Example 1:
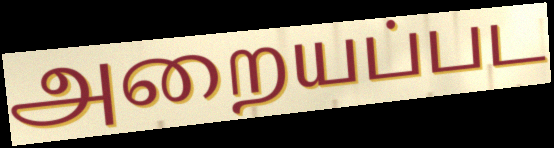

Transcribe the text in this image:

அறையப்பட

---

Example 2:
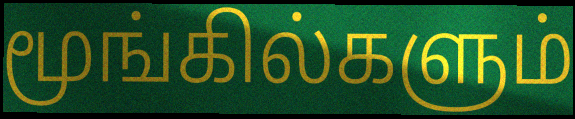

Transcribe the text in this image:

மூங்கில்களும்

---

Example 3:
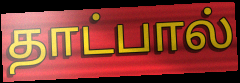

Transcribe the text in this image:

தாட்பால்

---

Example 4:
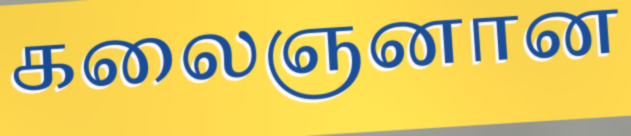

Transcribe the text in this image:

கலைஞனான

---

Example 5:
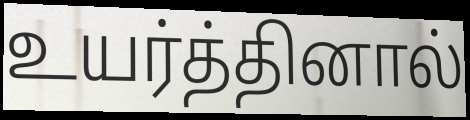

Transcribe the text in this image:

உயர்த்தினால்